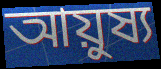
আয়ুষ্য